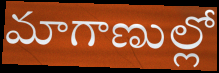
మాగాణుల్లో